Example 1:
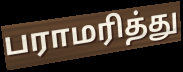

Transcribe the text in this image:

பராமரித்து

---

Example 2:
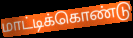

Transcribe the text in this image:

மாட்டிக்கொண்டு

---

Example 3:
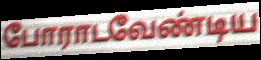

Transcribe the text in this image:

போராடவேண்டிய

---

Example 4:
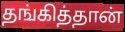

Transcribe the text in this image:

தங்கித்தான்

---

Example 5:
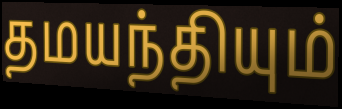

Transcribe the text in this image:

தமயந்தியும்